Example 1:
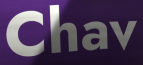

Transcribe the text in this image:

Chav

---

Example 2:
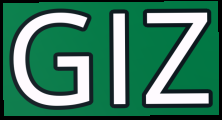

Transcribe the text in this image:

GIZ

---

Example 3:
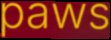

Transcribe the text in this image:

paws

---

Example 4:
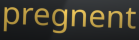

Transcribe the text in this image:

pregnent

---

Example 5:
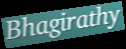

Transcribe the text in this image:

Bhagirathy